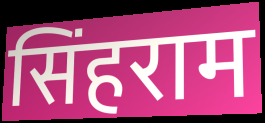
सिंहराम